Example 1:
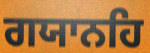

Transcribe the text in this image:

ਗਯਾਨਹਿ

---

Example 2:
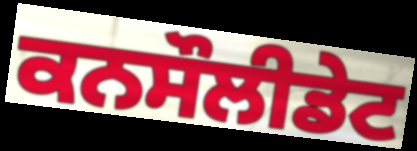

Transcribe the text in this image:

ਕਨਸੌਲੀਡੇਟ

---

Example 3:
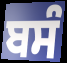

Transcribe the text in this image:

ਬਸੰ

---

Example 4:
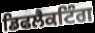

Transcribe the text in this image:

ਡਿਫਲੈਕਟਿੰਗ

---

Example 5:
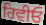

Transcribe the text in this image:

ਰਿਵੀਓ